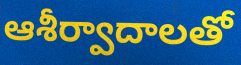
ఆశీర్వాదాలతో